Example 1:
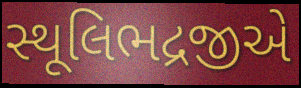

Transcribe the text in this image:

સ્થૂલિભદ્રજીએ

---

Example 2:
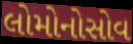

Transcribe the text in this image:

લોમોનોસોવ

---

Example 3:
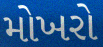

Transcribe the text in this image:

મોખરો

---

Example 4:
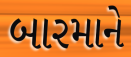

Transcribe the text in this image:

બારમાને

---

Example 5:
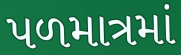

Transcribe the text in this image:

પળમાત્રમાં